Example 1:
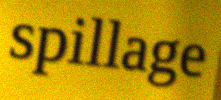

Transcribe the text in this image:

spillage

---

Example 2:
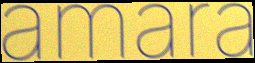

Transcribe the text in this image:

amara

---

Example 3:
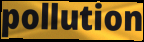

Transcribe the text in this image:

pollution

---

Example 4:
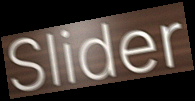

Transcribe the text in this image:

Slider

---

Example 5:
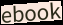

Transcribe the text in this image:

ebook